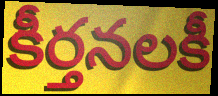
కీర్తనలకీ